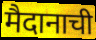
मैदानाची